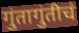
गुंतागुंतीचं